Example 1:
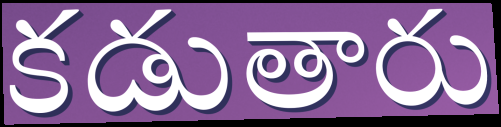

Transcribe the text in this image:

కడుతారు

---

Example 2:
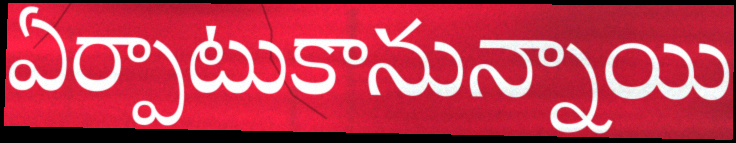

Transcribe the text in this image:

ఏర్పాటుకానున్నాయి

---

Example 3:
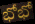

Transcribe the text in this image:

భోభో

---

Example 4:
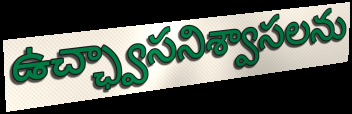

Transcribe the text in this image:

ఉచ్ఛ్వాసనిశ్వాసలను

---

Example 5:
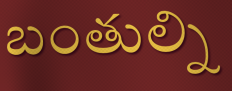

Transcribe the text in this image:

బంతుల్ని